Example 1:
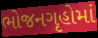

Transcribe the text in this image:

ભોજનગૃહોમાં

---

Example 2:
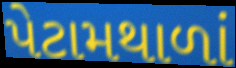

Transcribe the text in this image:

પેટામથાળાં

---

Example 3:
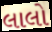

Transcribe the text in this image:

લાલો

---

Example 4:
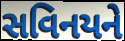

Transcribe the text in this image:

સવિનયને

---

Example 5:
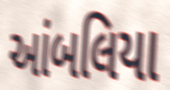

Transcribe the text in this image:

આંબલિયા